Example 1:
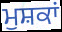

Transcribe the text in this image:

ਮੁਸ਼ਕਾਂ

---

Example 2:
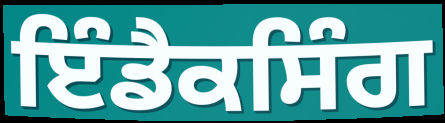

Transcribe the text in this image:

ਇੰਡੈਕਸਿੰਗ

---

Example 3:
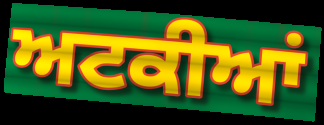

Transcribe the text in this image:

ਅਟਕੀਆਂ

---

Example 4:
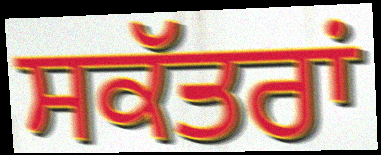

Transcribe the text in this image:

ਸਕੱਤਰਾਂ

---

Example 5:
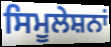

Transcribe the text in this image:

ਸਿਮੂਲੇਸ਼ਨਾਂ